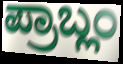
ಪ್ರಾಬ್ಲಂ